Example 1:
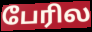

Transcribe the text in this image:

பேரில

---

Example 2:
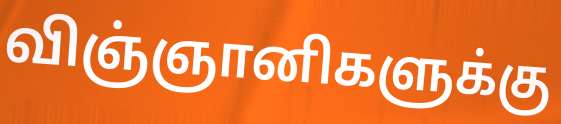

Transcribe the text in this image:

விஞ்ஞானிகளுக்கு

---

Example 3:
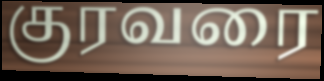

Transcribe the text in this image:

குரவரை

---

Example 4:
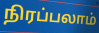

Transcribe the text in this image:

நிரப்பலாம்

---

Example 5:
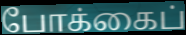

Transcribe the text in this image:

போக்கைப்